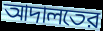
আদালতের